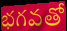
భగవతో